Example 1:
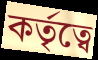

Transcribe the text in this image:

কর্তৃত্বে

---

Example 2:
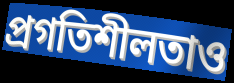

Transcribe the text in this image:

প্রগতিশীলতাও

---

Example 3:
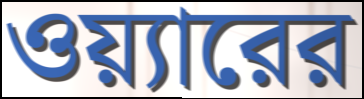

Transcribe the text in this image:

ওয়্যারের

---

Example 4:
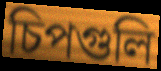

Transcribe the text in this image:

চিপগুলি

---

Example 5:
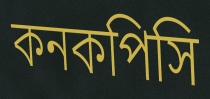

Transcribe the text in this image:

কনকপিসি